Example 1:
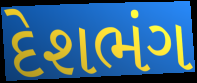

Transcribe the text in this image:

દેશભંગ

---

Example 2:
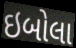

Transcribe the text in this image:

ઇબોલા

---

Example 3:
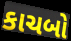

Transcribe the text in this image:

કાચબો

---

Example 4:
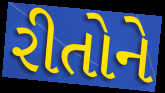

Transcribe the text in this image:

રીતોને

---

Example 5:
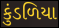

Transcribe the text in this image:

કુંડળિયા